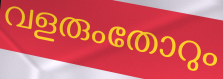
വളരുംതോറും